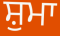
ਸ਼ੁਮਾ